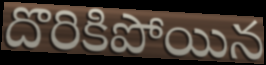
దొరికిపోయిన